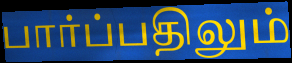
பார்ப்பதிலும்